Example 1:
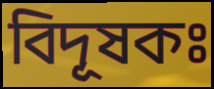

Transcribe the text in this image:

বিদূষকঃ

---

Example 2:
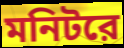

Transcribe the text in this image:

মনিটরে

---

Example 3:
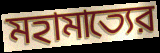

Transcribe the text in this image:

মহামাত্যের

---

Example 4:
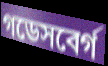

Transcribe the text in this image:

গডেসবের্গ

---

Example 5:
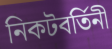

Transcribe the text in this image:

নিকটবর্তিনী